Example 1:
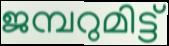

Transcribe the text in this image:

ജമ്പറുമിട്ട്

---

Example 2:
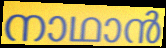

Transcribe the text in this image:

നാഥാൻ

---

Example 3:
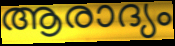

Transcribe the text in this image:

ആരാദ്യം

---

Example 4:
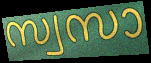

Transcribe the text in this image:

സ്വസാ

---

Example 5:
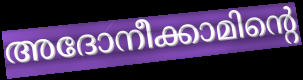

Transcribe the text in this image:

അദോനീക്കാമിന്റെ